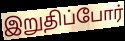
இறுதிப்போர்